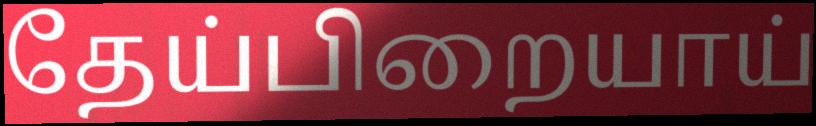
தேய்பிறையாய்